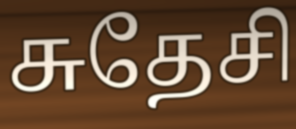
சுதேசி